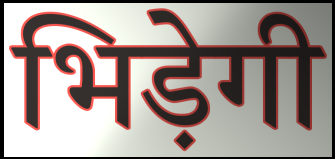
भिड़ेगी